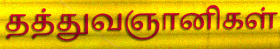
தத்துவஞானிகள்